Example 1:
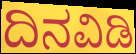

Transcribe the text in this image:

ದಿನವಿಡಿ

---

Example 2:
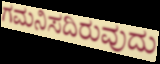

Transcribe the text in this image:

ಗಮನಿಸದಿರುವುದು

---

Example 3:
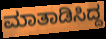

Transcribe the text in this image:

ಮಾತಾಡಿಸಿದ್ದ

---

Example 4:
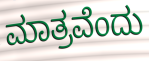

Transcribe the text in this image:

ಮಾತ್ರವೆಂದು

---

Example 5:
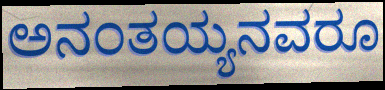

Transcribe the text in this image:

ಅನಂತಯ್ಯನವರೂ